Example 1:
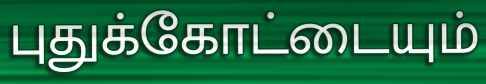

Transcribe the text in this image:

புதுக்கோட்டையும்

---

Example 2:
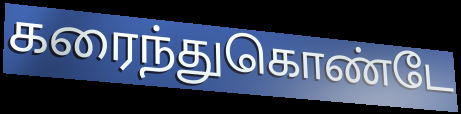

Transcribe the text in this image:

கரைந்துகொண்டே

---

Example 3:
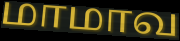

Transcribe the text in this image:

மாமாவ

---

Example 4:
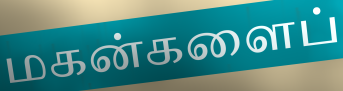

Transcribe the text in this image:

மகன்களைப்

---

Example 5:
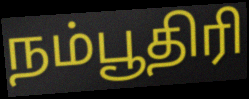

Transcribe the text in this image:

நம்பூதிரி